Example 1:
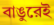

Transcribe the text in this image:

বাঙুরেই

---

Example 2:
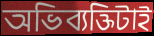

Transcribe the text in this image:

অভিব্যক্তিটাই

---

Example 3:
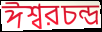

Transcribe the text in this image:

ঈশ্বরচন্দ্র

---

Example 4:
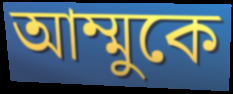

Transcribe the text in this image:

আম্মুকে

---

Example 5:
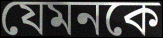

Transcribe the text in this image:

যেমনকে